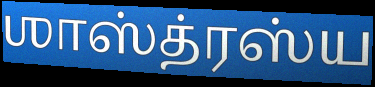
ஶாஸ்த்ரஸ்ய